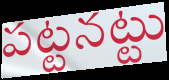
పట్టనట్టు